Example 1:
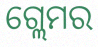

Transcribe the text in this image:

ଗ୍ଲେମର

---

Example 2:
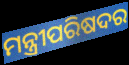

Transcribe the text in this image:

ମନ୍ତ୍ରୀପରିଷଦର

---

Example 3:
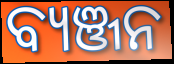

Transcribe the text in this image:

ବ୍ୟଞ୍ଜନ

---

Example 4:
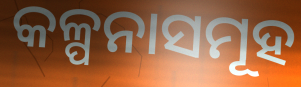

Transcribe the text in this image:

କଳ୍ପନାସମୂହ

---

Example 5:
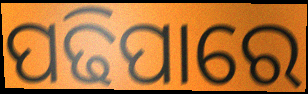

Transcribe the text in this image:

ପଢିପାରେ